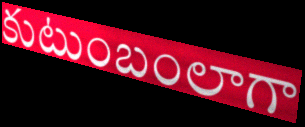
కుటుంబంలాగా